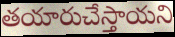
తయారుచేస్తాయని